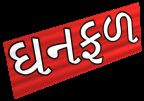
ઘનફળ